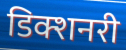
डिक्शनरी